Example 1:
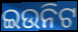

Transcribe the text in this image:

ଇଉନିଟ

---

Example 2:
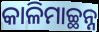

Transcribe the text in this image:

କାଳିମାଚ୍ଛନ୍ନ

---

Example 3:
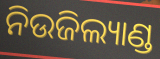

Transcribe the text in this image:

ନିଉଜିଲ୍ୟାଣ୍ଡ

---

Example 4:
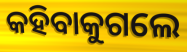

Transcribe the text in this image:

କହିବାକୁଗଲେ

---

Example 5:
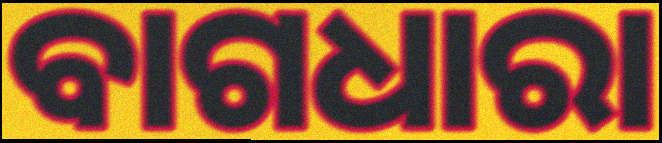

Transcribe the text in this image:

ବାଗଧାରା